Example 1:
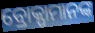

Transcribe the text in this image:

ବ୍ରୋକ୍ପାମାନଙ୍କ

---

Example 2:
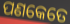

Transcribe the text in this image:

ପଣକେତେ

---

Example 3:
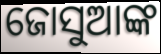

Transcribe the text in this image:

ଜୋସୁଆଙ୍କ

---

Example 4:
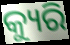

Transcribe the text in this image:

କ୍ୟୁରି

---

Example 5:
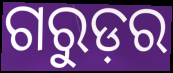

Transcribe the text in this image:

ଗରୁଡ଼ର